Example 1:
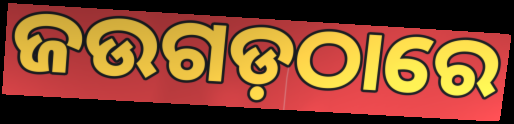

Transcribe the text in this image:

ଜଉଗଡ଼ଠାରେ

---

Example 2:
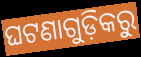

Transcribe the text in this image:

ଘଟଣାଗୁଡ଼ିକରୁ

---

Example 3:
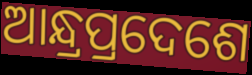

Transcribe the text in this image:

ଆନ୍ଧ୍ରପ୍ରଦେଶେ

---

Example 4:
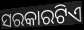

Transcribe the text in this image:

ସରକାରଟିଏ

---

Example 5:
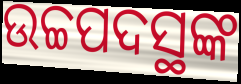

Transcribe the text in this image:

ଉଚ୍ଚପଦସ୍ଥଙ୍କ